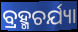
ବ୍ରହ୍ମଚର୍ଯ୍ୟା